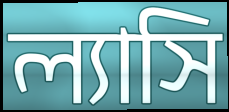
ল্যাসি